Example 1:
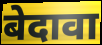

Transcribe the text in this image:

बेदावा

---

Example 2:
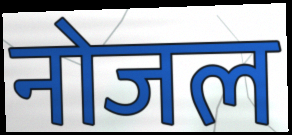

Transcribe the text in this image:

नोजल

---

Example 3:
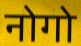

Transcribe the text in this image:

नोगो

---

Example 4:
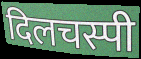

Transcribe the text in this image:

दिलचस्‍पी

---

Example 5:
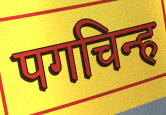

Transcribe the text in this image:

पगचिन्ह